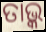
ତାଭ୍କ